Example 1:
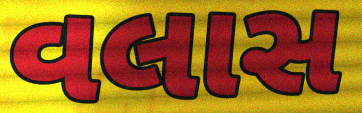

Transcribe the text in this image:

વલાસ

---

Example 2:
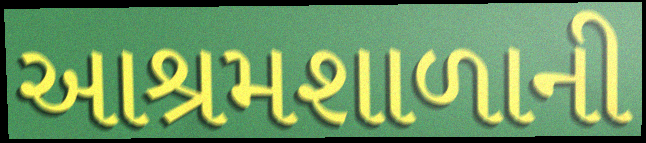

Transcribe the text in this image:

આશ્રમશાળાની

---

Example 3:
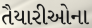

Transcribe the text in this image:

તૈયારીઓના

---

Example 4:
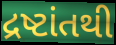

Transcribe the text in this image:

દ્રષ્ટાંતથી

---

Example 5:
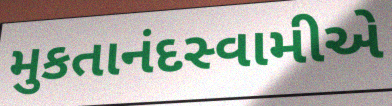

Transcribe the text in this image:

મુકતાનંદસ્વામીએ